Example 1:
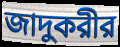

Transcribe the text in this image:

জাদুকরীর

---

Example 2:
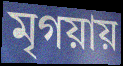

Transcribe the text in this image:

মৃগয়ায়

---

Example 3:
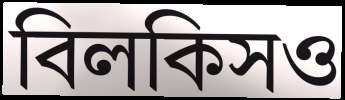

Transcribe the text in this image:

বিলকিসও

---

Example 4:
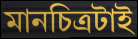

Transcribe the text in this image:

মানচিত্রটাই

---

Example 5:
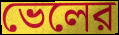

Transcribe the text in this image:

ভেলের